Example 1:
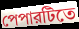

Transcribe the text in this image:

পেপারটিতে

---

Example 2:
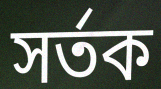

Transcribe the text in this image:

সর্তক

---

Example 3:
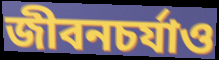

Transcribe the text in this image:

জীবনচর্যাও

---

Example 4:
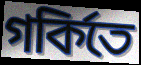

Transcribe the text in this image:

গর্কিতে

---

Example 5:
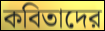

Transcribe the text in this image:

কবিতাদের